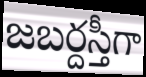
జబర్దస్తీగా